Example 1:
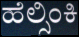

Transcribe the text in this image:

ಹೆಲ್ಸಿಂಕಿ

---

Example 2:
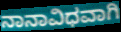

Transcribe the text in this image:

ನಾನಾವಿಧವಾಗಿ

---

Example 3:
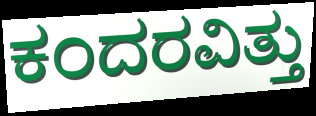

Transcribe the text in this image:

ಕಂದರವಿತ್ತು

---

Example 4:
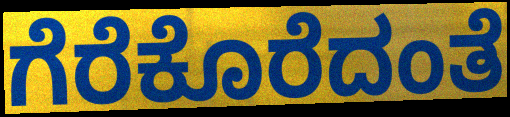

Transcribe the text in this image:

ಗೆರೆಕೊರೆದಂತೆ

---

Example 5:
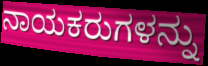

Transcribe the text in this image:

ನಾಯಕರುಗಳನ್ನು